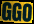
GGO